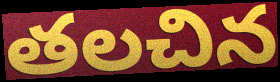
తలచిన